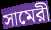
সামেরী